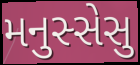
મનુસ્સેસુ